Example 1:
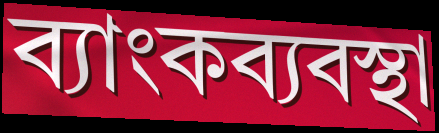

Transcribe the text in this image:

ব্যাংকব্যবস্থা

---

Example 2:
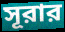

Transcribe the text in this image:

সূরার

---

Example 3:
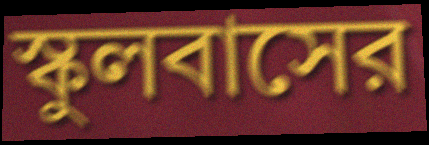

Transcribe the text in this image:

স্কুলবাসের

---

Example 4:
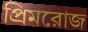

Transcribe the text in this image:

প্রিমরোজ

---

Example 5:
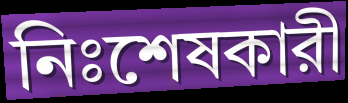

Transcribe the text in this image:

নিঃশেষকারী